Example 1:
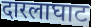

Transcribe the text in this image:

दारलाघाट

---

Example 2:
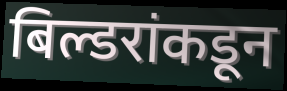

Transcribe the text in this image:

बिल्डरांकडून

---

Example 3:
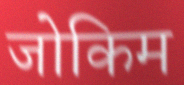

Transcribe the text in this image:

जोकिम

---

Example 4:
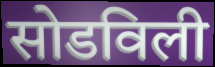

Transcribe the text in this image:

सोडविली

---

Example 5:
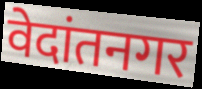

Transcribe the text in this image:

वेदांतनगर